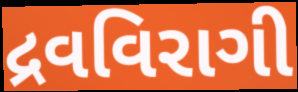
દ્રવવિરાગી